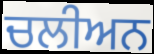
ਚਲੀਅਨ